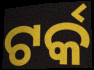
ଟର୍କ